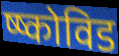
ष्ष्कोविड